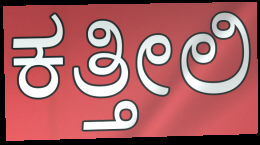
ಕತ್ತೀಲಿ